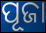
ପୂଜା